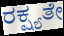
ರಕ್ಷ್ಯತೇ